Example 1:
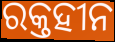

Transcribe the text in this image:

ରକ୍ତହୀନ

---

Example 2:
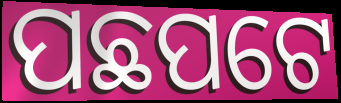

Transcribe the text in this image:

ପଛପଟେ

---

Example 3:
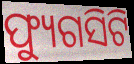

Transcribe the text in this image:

ଫ୍ୟୁଗସିଟି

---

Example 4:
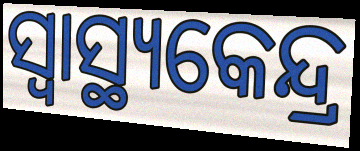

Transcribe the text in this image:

ସ୍ବାସ୍ଥ୍ୟକେନ୍ଦ୍ର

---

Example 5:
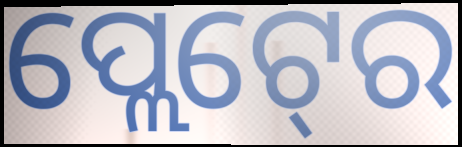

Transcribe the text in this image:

ପ୍ଲେଟ୍‍ରେ